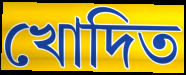
খোদিত